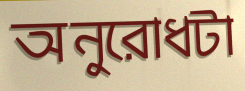
অনুরোধটা